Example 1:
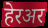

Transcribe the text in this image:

हेरअर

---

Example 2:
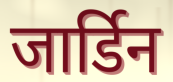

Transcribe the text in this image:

जार्डिन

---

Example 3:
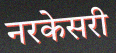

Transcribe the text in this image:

नरकेसरी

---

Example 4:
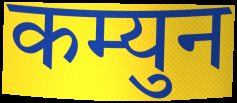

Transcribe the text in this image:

कम्युन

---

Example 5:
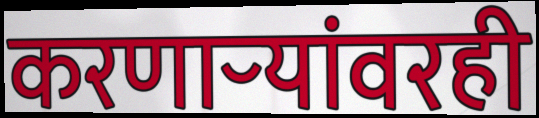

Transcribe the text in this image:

करणाऱ्यांवरही